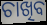
ଚାଖିବ